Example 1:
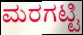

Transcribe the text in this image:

ಮರಗಟ್ಟಿ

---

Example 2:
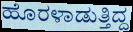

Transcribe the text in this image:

ಹೊರಳಾಡುತ್ತಿದ್ದ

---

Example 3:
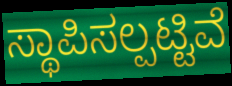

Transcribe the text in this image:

ಸ್ಥಾಪಿಸಲ್ಪಟ್ಟಿವೆ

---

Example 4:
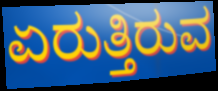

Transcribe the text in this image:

ಏರುತ್ತಿರುವ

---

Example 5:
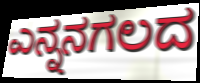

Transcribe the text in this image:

ಎನ್ನನಗಲದ